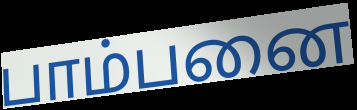
பாம்பனை